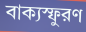
বাক্যস্ফুরণ